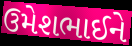
ઉમેશભાઈને